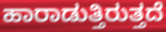
ಹಾರಾಡುತ್ತಿರುತ್ತದೆ